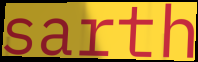
sarth